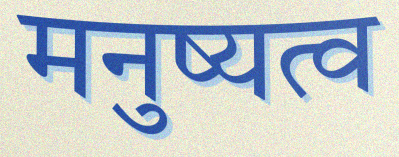
मनुष्यत्‍व